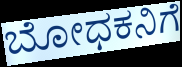
ಬೋಧಕನಿಗೆ